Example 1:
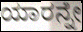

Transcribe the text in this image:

ಯಾರನ್ನೇ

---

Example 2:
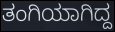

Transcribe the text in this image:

ತಂಗಿಯಾಗಿದ್ದ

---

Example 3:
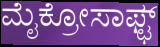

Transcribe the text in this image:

ಮೈಕ್ರೋಸಾಫ್ಟ್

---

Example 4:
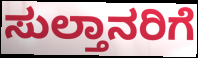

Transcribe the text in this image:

ಸುಲ್ತಾನರಿಗೆ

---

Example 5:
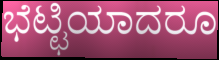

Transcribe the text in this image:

ಭೆಟ್ಟಿಯಾದರೂ